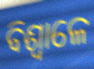
ବିଶ୍ଵାଳେ